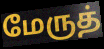
மேருத்